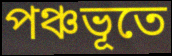
পঞ্চভূতে